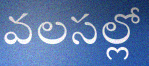
వలసల్లో